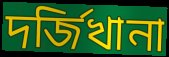
দর্জিখানা